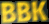
BBK